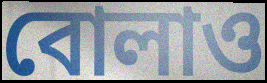
বোলাও